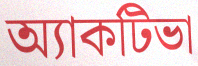
অ্যাকটিভা